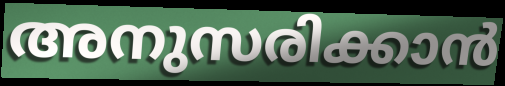
അനുസരിക്കാൻ